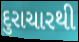
દુરાચારથી